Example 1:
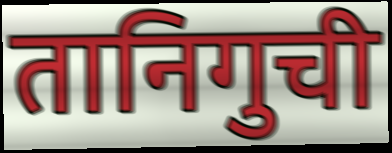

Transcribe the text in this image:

तानिगुची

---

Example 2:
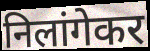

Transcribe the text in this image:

निलांगेकर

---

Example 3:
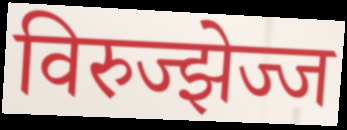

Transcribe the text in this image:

विरुज्झेज्ज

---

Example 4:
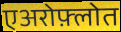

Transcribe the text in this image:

एअरोफ़्लोत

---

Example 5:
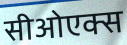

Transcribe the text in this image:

सीओएक्स